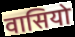
वासियो